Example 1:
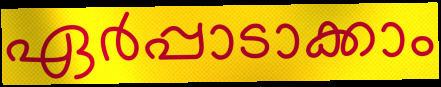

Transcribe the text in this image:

ഏർപ്പാടാക്കാം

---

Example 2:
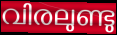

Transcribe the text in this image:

വിരലുണ്ടു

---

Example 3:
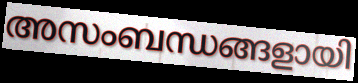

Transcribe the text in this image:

അസംബന്ധങ്ങളായി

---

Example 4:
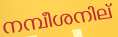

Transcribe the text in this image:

നമ്പീശനില്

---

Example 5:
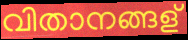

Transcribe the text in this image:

വിതാനങ്ങള്